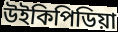
উইকিপিডিয়া